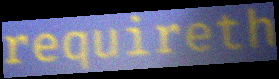
requireth